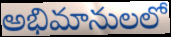
అభిమానులలో